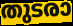
തുടരാ